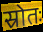
स्रोतः